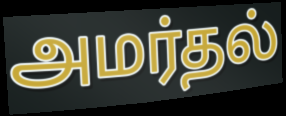
அமர்தல்